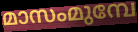
മാസംമുമ്പേ